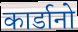
कार्डानो